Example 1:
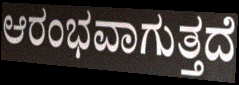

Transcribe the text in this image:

ಆರಂಭವಾಗುತ್ತದೆ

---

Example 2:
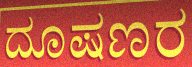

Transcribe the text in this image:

ದೂಷಣರ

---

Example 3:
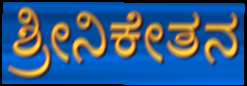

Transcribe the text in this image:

ಶ್ರೀನಿಕೇತನ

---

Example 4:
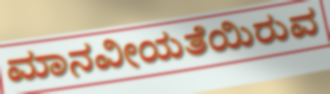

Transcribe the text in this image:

ಮಾನವೀಯತೆಯಿರುವ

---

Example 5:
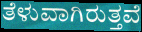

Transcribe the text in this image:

ತೆಳುವಾಗಿರುತ್ತವೆ